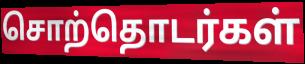
சொற்தொடர்கள்